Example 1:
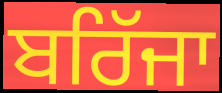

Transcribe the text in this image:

ਬਰਿੱਜਾ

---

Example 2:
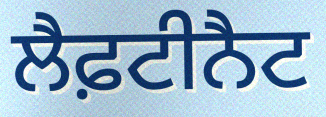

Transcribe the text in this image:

ਲੈਫ਼ਟੀਨੈਟ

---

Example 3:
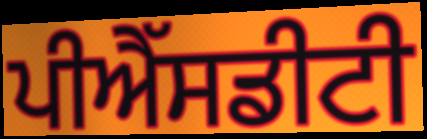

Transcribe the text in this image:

ਪੀਐੱਸਡੀਟੀ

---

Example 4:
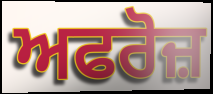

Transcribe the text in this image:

ਅਫਰੋਜ਼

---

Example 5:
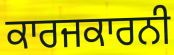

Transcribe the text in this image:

ਕਾਰਜਕਾਰਨੀ